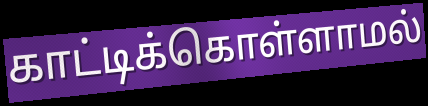
காட்டிக்கொள்ளாமல்